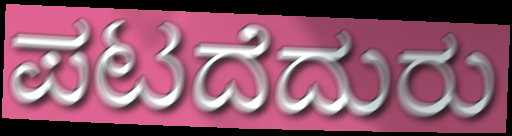
ಪಟದೆದುರು